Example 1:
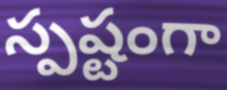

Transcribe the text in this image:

స్పష్టంగా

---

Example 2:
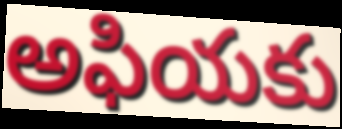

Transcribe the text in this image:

అఫియకు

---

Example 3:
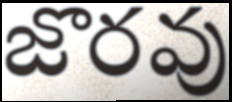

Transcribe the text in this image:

జొరవు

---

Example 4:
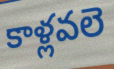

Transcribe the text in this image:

కాళ్లవలె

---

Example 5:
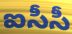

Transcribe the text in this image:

ఐసీసీ